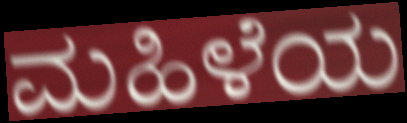
ಮಹಿಳೆಯ